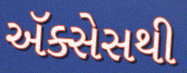
ઍક્સેસથી